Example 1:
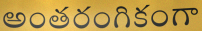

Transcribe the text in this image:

అంతరంగికంగా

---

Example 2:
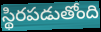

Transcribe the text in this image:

స్థిరపడుతోంది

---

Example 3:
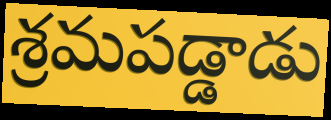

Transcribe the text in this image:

శ్రమపడ్డాడు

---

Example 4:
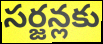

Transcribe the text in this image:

సర్జన్లకు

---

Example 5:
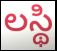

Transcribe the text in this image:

లస్థి